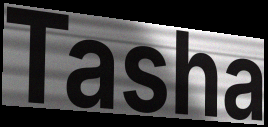
Tasha